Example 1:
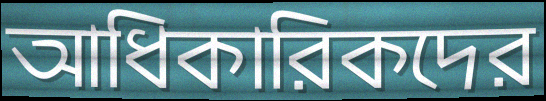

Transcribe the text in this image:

আধিকারিকদের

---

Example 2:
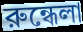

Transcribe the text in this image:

রুন্ধেলা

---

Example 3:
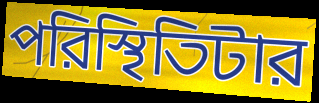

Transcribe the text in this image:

পরিস্থিতিটার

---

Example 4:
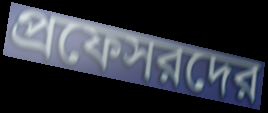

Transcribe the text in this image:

প্রফেসরদের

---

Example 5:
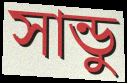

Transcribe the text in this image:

সান্ডু